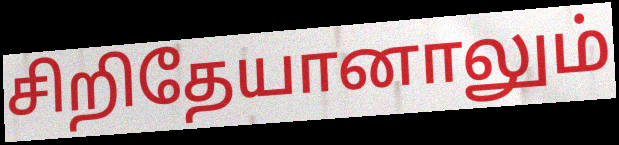
சிறிதேயானாலும்